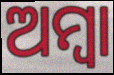
ଅମ୍ବା